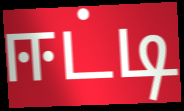
ஈட்டி